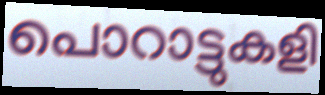
പൊറാട്ടുകളി